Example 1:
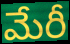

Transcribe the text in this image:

మేరీ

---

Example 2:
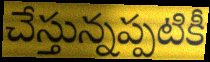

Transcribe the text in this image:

చేస్తున్నప్పటికీ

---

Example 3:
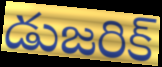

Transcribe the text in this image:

డుజరిక్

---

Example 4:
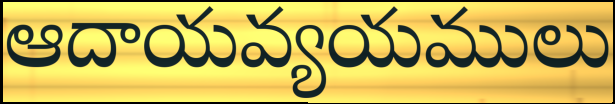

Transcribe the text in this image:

ఆదాయవ్యయములు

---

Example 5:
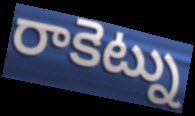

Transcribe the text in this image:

రాకెట్ను